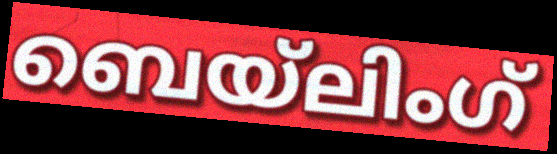
ബെയ്ലിംഗ്